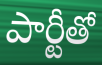
పార్టీతో